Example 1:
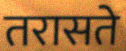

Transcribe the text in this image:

तरासते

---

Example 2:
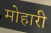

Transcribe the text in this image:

मोहारी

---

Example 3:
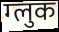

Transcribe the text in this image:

ग्लुक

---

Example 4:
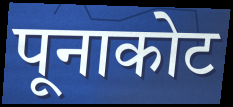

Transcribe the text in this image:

पूनाकोट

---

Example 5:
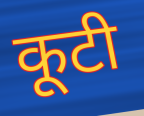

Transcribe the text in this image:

कूटी